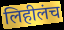
लिहीलंच